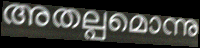
അതല്പമൊന്നു